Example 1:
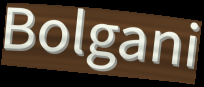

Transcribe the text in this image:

Bolgani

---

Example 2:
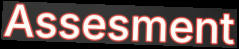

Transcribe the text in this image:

Assesment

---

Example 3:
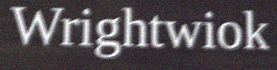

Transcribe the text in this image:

Wrightwiok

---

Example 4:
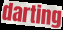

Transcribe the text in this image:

darting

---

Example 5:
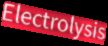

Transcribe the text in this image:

Electrolysis